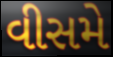
વીસમે